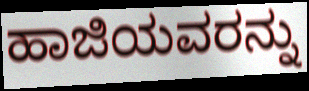
ಹಾಜಿಯವರನ್ನು